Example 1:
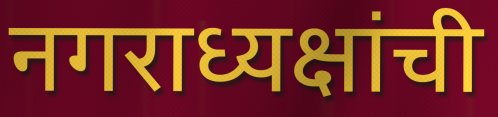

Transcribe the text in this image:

नगराध्यक्षांची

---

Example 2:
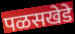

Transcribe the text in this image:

पळसखेडे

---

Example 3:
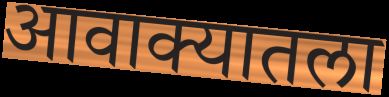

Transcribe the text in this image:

आवाक्यातला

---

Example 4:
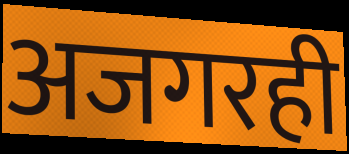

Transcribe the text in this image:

अजगरही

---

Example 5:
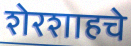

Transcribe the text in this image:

शेरशाहचे